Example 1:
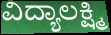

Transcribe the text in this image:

ವಿದ್ಯಾಲಕ್ಷ್ಮಿ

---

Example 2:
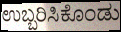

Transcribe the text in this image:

ಉಬ್ಬರಿಸಿಕೊಂಡು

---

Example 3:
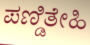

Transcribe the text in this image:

ಪಣ್ಡಿತೇಹಿ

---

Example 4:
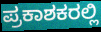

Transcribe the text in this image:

ಪ್ರಕಾಶಕರಲ್ಲಿ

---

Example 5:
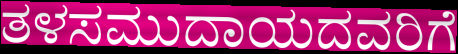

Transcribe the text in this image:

ತಳಸಮುದಾಯದವರಿಗೆ